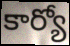
కార్యో